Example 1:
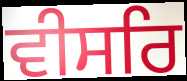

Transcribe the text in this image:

ਵੀਸਰਿ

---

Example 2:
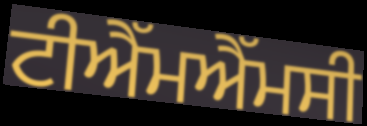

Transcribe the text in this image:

ਟੀਐੱਮਐੱਮਸੀ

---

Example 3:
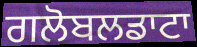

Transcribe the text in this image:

ਗਲੋਬਲਡਾਟਾ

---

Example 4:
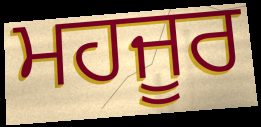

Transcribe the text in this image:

ਮਹਜੂਰ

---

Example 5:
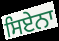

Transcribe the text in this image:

ਸਿਏਨਾ